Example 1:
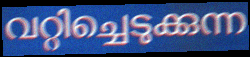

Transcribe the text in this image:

വറ്റിച്ചെടുക്കുന്ന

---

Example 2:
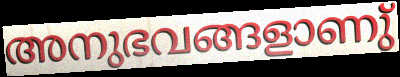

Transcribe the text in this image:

അനുഭവങ്ങളാണു്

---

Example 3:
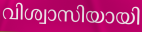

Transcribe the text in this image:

വിശ്വാസിയായി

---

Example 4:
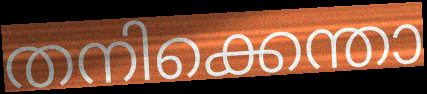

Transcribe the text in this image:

തനിക്കെന്താ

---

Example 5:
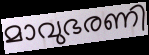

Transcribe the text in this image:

മാവുഭരണി